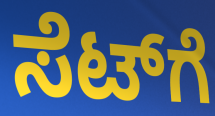
ಸೆಟ್‌ಗೆ